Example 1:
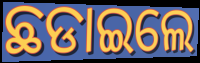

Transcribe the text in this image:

ଛଡାଇଲେ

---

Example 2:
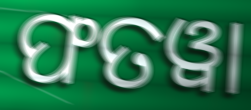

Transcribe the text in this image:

ଫତୱା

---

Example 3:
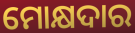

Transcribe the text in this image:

ମୋକ୍ଷଦାର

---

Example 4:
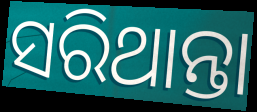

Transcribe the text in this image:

ସରିଥାନ୍ତା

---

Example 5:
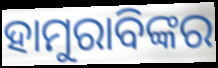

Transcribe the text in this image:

ହାମୁରାବିଙ୍କର